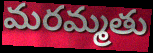
మరమ్మతు